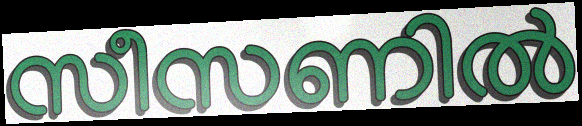
സീസണിൽ